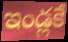
ఇండ్లకే